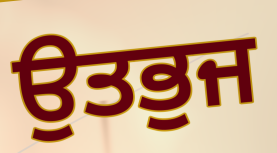
ਉਤਭੁਜ